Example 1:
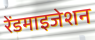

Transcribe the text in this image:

रेंडमाइजेशन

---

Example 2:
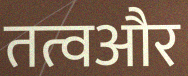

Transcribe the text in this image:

तत्वऔर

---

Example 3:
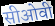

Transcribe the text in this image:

सीओवी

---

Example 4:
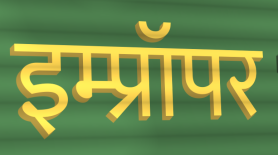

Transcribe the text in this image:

इम्प्रॉपर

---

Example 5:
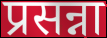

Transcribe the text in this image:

प्रसन्ना